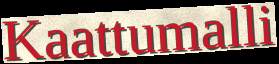
Kaattumalli